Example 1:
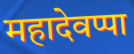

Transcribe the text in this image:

महादेवप्पा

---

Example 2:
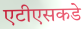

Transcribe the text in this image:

एटीएसकडे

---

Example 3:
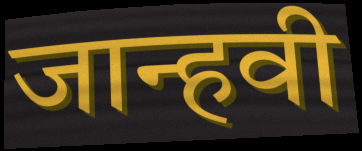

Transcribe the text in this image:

जान्हवी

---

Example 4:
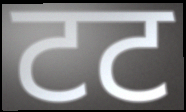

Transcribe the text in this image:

टट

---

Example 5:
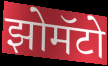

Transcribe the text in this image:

झोमॅटो